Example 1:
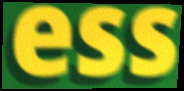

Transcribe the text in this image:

ess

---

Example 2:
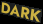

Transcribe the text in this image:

DARK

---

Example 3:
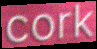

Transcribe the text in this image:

cork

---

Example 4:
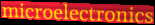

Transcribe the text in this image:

microelectronics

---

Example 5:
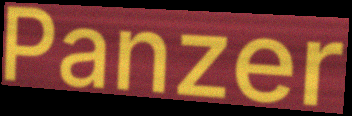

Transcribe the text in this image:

Panzer